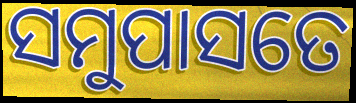
ସମୁପାସତେ